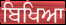
ਬਿਖਿਆ